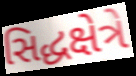
સિદ્ધક્ષેત્રે